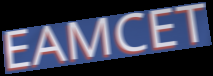
EAMCET